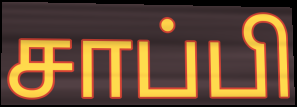
சாப்பி